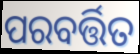
ପରବର୍ତ୍ତିତ